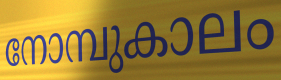
നോമ്പുകാലം